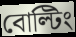
বোল্টিং